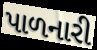
પાળનારી